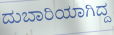
ದುಬಾರಿಯಾಗಿದ್ದ